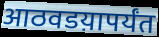
आठवडय़ापर्यंत